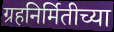
ग्रहनिर्मितीच्या